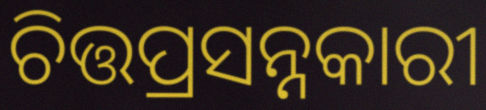
ଚିତ୍ତପ୍ରସନ୍ନକାରୀ